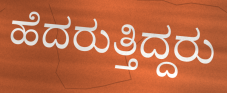
ಹೆದರುತ್ತಿದ್ದರು